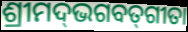
ଶ୍ରୀମଦ୍‌ଭଗବତ୍‌ଗୀତା